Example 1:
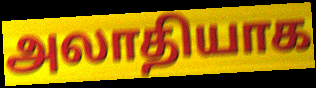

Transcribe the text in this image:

அலாதியாக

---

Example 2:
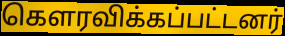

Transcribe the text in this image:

கௌரவிக்கப்பட்டனர்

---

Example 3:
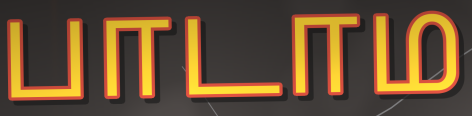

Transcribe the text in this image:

பாடாம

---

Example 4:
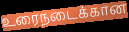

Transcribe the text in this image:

உரைநடைக்கான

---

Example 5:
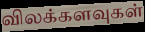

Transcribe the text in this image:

விலக்களவுகள்